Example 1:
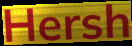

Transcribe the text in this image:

Hersh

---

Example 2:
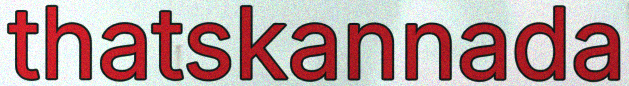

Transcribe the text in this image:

thatskannada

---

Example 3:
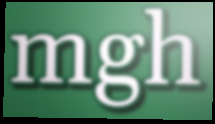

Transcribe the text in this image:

mgh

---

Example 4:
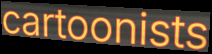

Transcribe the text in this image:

cartoonists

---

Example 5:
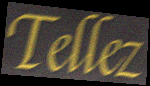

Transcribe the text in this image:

Tellez